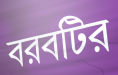
বরবটির